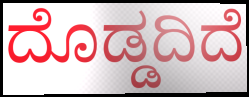
ದೊಡ್ಡದಿದೆ